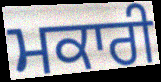
ਮਕਾਰੀ